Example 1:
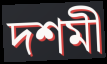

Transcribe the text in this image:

দশমী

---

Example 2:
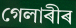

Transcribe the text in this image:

গেলাৰীৰ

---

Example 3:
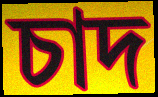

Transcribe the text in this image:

চাদ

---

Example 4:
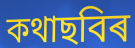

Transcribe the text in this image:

কথাছবিৰ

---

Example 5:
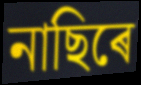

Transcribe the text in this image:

নাছিৰে